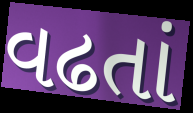
વઢતાં